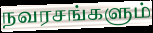
நவரசங்களும்